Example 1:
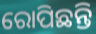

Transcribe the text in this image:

ରୋପିଛନ୍ତି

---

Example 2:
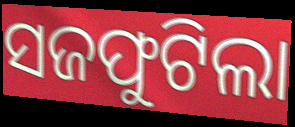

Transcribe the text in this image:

ସଜଫୁଟିଲା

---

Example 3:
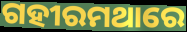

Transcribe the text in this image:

ଗହୀରମଥାରେ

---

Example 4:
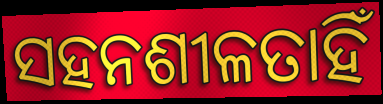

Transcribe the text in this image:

ସହନଶୀଳତାହିଁ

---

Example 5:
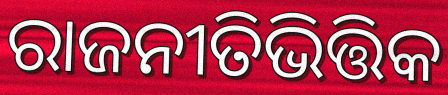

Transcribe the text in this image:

ରାଜନୀତିଭିତ୍ତିକ